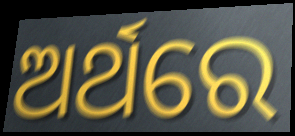
ଅର୍ଥରେ